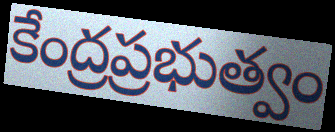
కేంద్రప్రభుత్వం